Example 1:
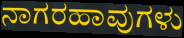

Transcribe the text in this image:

ನಾಗರಹಾವುಗಳು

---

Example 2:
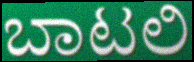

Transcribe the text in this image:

ಬಾಟಲಿ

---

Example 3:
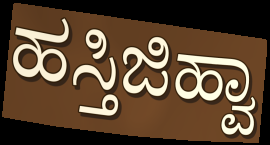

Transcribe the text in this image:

ಹಸ್ತಿಜಿಹ್ವಾ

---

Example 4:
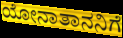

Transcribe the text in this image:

ಯೋನಾತಾನನಿಗೆ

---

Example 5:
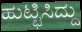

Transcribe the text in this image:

ಹುಟ್ಟಿಸಿದ್ದು